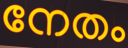
നേതം